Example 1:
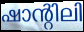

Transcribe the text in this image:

ഷാന്റിലി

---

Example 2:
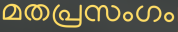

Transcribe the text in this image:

മതപ്രസംഗം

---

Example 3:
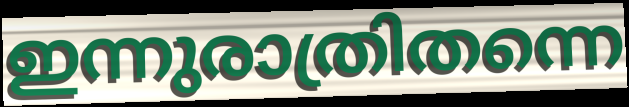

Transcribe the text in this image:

ഇന്നുരാത്രിതന്നെ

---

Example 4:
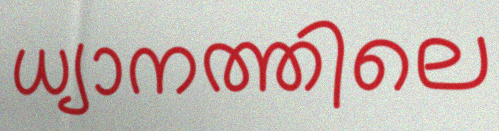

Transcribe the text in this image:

ധ്യാനത്തിലെ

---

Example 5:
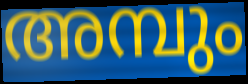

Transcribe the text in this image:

അമ്പും